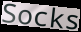
Socks